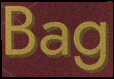
Bag